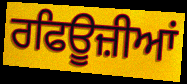
ਰਫਿਊਜ਼ੀਆਂ